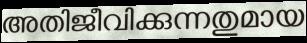
അതിജീവിക്കുന്നതുമായ